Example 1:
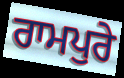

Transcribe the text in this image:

ਰਾਮਪੁਰੇ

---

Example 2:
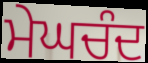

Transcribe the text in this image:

ਮੇਘਚੰਦ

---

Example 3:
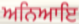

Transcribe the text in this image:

ਅਨਿਆਇ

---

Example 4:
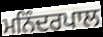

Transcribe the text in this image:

ਮਨਿੰਦਰਪਾਲ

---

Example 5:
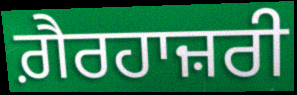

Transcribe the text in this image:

ਗ਼ੈਰਹਾਜ਼ਰੀ